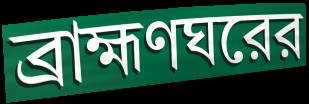
ব্রাহ্মণঘরের